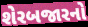
શેરબજારનો